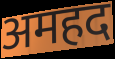
अमहद